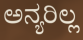
ಅನ್ಯರಿಲ್ಲ